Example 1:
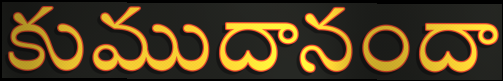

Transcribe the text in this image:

కుముదానందా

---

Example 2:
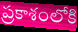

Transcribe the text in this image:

ప్రకాశంలోకి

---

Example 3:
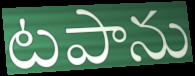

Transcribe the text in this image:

టపాను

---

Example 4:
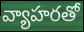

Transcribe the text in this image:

వ్యాహరతో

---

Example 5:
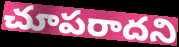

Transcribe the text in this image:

చూపరాదని